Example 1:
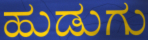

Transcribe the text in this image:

ಹುಡುಗು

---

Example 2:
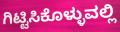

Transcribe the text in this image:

ಗಿಟ್ಟಿಸಿಕೊಳ್ಳುವಲ್ಲಿ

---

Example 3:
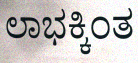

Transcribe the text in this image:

ಲಾಭಕ್ಕಿಂತ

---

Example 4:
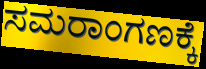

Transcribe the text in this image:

ಸಮರಾಂಗಣಕ್ಕೆ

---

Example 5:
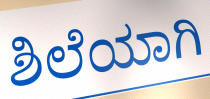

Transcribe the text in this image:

ಶಿಲೆಯಾಗಿ